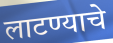
लाटण्याचे